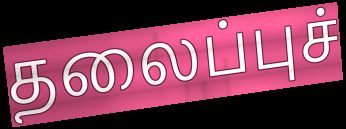
தலைப்புச்